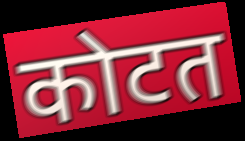
कोटत